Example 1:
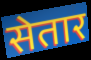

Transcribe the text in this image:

सेतार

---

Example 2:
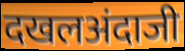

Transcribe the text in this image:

दखलअंदाजी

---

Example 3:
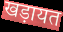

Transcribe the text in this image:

खड़ायत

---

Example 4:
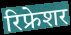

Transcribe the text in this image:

रिफ्रेशर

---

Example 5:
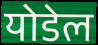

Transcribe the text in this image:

योडेल